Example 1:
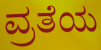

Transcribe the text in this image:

ವ್ರತೆಯ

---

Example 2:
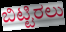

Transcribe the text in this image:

ಬಿಟ್ಟಿರಲು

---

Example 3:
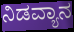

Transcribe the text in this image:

ನಿಡವ್ಯಾನ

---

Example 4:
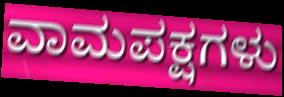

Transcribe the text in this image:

ವಾಮಪಕ್ಷಗಳು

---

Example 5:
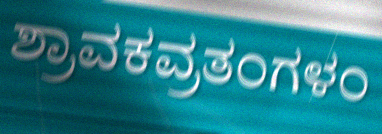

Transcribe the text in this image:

ಶ್ರಾವಕವ್ರತಂಗಳಂ